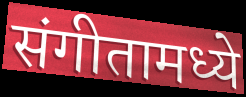
संगीतामध्ये